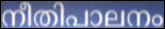
നീതിപാലനം